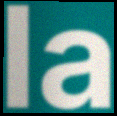
Ia